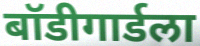
बॉडीगार्डला